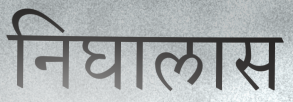
निघालास